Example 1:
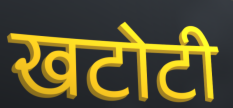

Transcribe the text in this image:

खटोटी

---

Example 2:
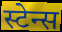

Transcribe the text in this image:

स्टेन्स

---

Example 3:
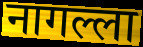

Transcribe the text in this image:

नागल्ला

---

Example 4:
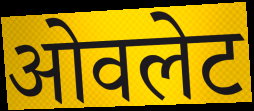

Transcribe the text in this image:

ओवलेट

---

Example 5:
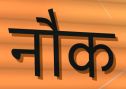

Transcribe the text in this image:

नौक